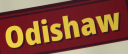
Odishaw